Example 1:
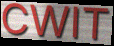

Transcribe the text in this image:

CWIT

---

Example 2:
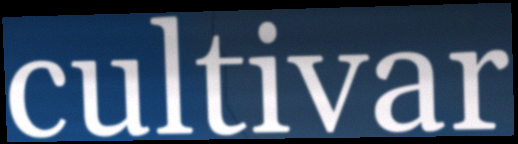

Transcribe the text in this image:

cultivar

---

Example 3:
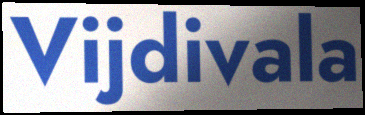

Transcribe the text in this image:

Vijdivala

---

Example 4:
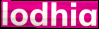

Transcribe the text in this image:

lodhia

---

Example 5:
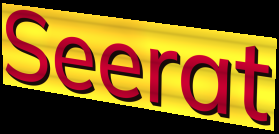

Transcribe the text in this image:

Seerat